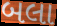
બલા